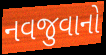
નવજુવાનો